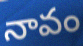
నావం